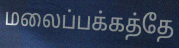
மலைப்பக்கத்தே